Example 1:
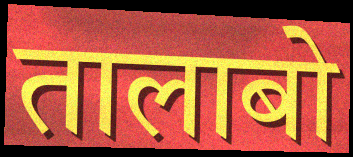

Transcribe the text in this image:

तालाबो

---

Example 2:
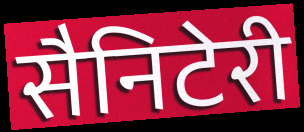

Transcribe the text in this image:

सैनिटेरी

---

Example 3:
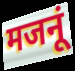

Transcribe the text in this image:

मजनूं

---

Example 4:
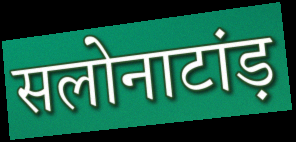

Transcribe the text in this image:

सलोनाटांड़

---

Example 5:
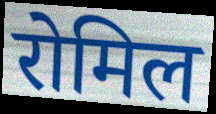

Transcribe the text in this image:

रोमिल